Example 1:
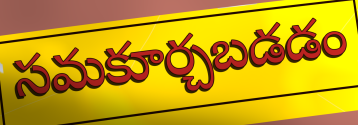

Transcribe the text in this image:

సమకూర్చబడడం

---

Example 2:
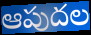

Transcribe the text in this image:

ఆపుదల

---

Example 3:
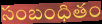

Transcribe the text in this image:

సంబంధితం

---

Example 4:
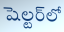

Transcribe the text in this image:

షెల్టర్‌లో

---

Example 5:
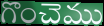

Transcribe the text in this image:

గొంచెము